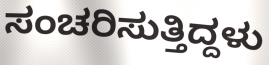
ಸಂಚರಿಸುತ್ತಿದ್ದಳು